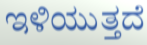
ಇಳಿಯುತ್ತದೆ